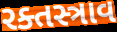
રક્તસ્ત્રાવ